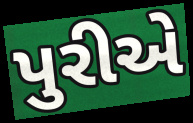
પુરીએ